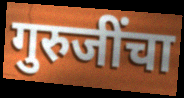
गुरुजींचा